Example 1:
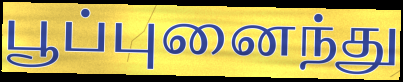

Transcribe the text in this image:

பூப்புனைந்து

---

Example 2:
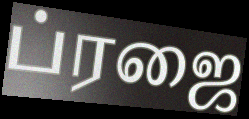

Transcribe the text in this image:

ப்ரஜை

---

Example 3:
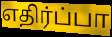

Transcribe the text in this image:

எதிர்ப்பா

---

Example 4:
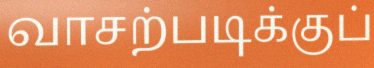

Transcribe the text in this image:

வாசற்படிக்குப்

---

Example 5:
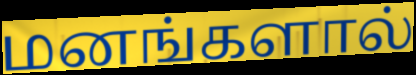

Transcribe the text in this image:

மனங்களால்